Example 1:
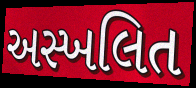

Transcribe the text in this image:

અસ્ખલિત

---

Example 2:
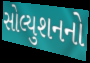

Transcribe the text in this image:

સોલ્યુશનનો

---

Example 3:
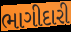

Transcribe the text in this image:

ભાગીદારી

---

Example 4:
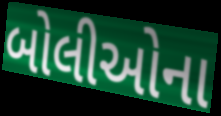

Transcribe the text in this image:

બોલીઓના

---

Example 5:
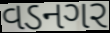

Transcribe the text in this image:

વડનગર